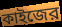
কাইজের